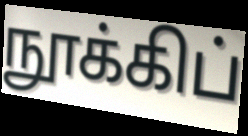
நூக்கிப்